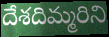
దేశదిమ్మరిని